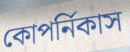
কোপর্নিকাস